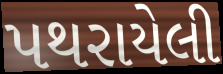
પથરાયેલી